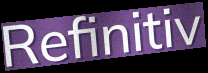
Refinitiv